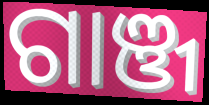
ଗାଞ୍ଜ